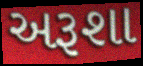
અરૂશા